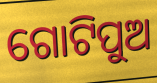
ଗୋଟିପୁଅ